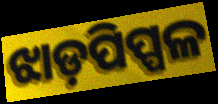
ଝାଡ଼ପିପ୍ପଳ